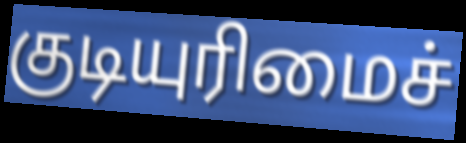
குடியுரிமைச்